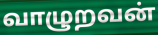
வாழுறவன்